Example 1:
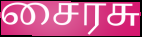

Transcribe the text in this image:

சைரசு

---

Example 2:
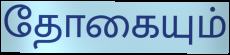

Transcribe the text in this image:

தோகையும்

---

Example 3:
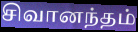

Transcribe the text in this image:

சிவானந்தம்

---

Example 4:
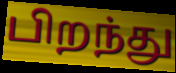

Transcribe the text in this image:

பிறந்து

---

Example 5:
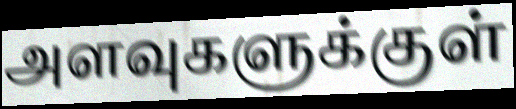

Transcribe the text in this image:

அளவுகளுக்குள்